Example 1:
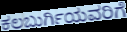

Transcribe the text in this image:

ಕಲಬುರ್ಗಿಯವರಿಗೆ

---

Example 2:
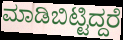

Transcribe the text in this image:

ಮಾಡಿಬಿಟ್ಟಿದ್ದರೆ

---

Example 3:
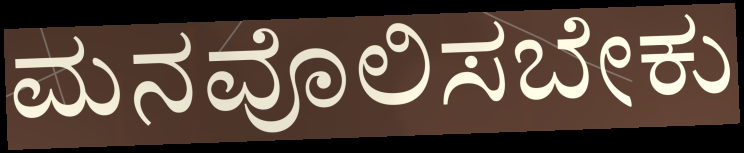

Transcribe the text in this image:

ಮನವೊಲಿಸಬೇಕು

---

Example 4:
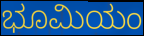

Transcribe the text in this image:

ಭೂಮಿಯಂ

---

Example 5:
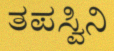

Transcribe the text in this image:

ತಪಸ್ವಿನಿ